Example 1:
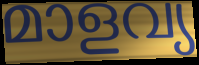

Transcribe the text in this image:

മാളവ്യ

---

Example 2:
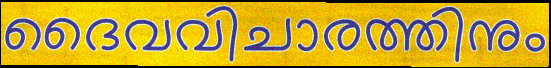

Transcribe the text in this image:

ദൈവവിചാരത്തിനും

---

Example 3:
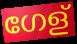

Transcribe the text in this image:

ഗേള്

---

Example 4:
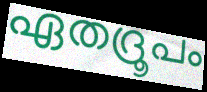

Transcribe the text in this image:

ഏതദ്രൂപം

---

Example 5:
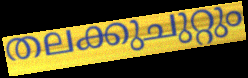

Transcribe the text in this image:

തലക്കുചുറ്റും